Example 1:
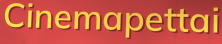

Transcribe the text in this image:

Cinemapettai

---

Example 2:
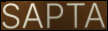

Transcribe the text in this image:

SAPTA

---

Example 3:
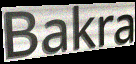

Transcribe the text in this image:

Bakra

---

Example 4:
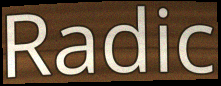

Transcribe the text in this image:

Radic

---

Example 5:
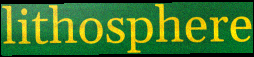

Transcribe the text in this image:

lithosphere